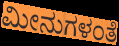
ಮೀನುಗಳಂತೆ